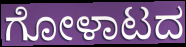
ಗೋಳಾಟದ